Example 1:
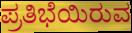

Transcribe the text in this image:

ಪ್ರತಿಭೆಯಿರುವ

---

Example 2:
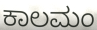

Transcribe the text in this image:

ಕಾಲಮಂ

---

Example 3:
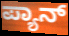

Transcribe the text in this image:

ಪ್ಯಾನ್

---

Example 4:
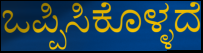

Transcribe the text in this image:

ಒಪ್ಪಿಸಿಕೊಳ್ಳದೆ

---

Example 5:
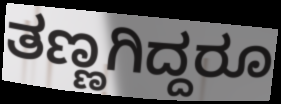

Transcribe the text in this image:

ತಣ್ಣಗಿದ್ದರೂ